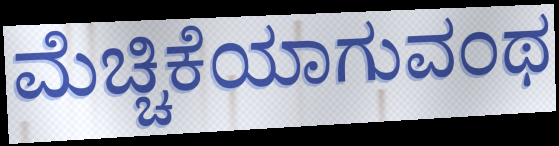
ಮೆಚ್ಚಿಕೆಯಾಗುವಂಥ